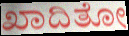
ಖಾದಿತೋ